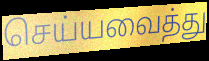
செய்யவைத்து